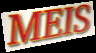
MEIS